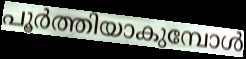
പൂർത്തിയാകുമ്പോൾ